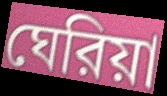
ঘেরিয়া